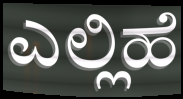
ಎಲ್ಲಿಹೆ